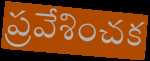
ప్రవేశించక